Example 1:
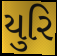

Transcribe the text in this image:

યુરિ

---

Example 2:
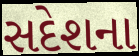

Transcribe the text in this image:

સદેશના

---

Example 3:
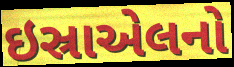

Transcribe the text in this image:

ઇસ્રાએલનો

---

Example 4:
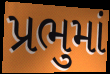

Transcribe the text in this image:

પ્રભુમાં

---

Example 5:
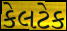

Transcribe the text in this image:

કેલટેક